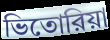
ভিতোরিয়া